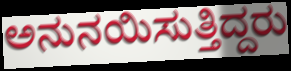
ಅನುನಯಿಸುತ್ತಿದ್ದರು